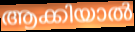
ആക്കിയാൽ